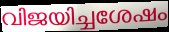
വിജയിച്ചശേഷം